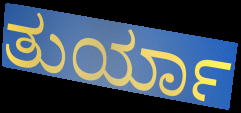
ತುರ್ಯಾ